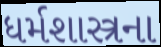
ધર્મશાસ્ત્રના